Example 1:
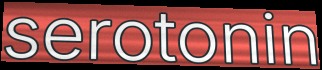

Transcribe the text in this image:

serotonin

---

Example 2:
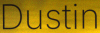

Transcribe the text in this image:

Dustin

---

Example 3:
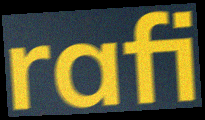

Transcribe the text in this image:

rafi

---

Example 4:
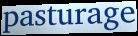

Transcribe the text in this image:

pasturage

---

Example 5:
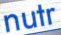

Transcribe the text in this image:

nutr